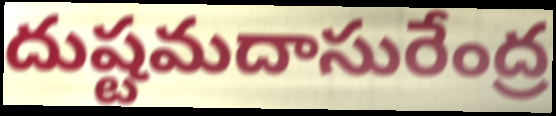
దుష్టమదాసురేంద్ర